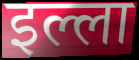
इल्ला